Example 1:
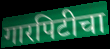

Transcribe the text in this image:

गारपिटीचा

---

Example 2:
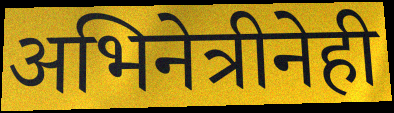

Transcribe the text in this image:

अभिनेत्रीनेही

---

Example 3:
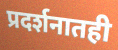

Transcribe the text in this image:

प्रदर्शनातही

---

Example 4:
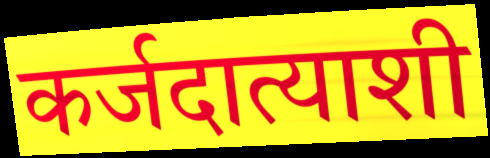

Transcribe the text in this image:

कर्जदात्याशी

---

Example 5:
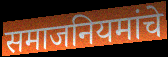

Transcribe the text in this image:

समाजनियमांचे